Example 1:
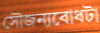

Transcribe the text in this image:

সৌজন্যবোধটা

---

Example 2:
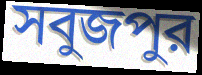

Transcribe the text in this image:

সবুজপুর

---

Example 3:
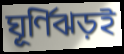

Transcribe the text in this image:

ঘূর্ণিঝড়ই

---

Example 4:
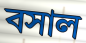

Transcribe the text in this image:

বসাল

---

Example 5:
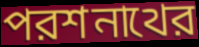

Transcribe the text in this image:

পরশনাথের